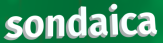
sondaica